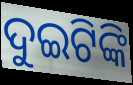
ଦୁଇଟିଙ୍କି